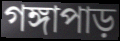
গঙ্গাপাড়